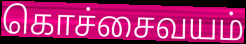
கொச்சைவயம்